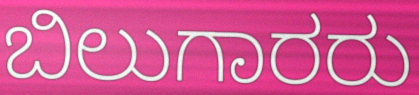
ಬಿಲುಗಾರರು